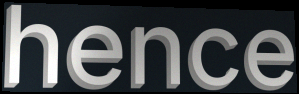
hence